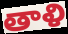
తాళి